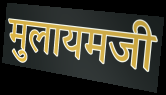
मुलायमजी